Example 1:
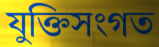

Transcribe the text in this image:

যুক্তিসংগত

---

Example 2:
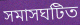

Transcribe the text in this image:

সমাসঘটিত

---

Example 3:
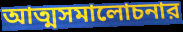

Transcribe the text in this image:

আত্মসমালোচনার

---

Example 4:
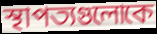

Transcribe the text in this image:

স্থাপত্যগুলোকে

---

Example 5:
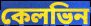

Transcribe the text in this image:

কেলভিন